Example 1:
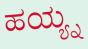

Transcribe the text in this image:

ಹಯ್ಯ್ನ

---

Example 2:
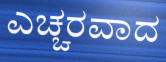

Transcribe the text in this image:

ಎಚ್ಚರವಾದ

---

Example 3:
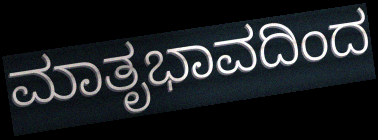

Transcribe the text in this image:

ಮಾತೃಭಾವದಿಂದ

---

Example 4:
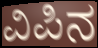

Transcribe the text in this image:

ವಿಪಿನ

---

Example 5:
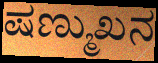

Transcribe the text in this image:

ಷಣ್ಮುಖನ